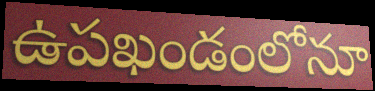
ఉపఖండంలోనూ